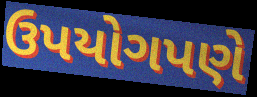
ઉપયોગપણે